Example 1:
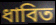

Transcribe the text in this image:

ধাবিত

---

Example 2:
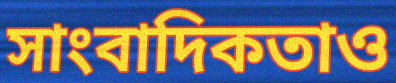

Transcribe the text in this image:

সাংবাদিকতাও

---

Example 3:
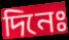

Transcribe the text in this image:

দিনেঃ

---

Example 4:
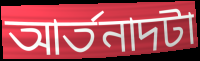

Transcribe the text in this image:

আর্তনাদটা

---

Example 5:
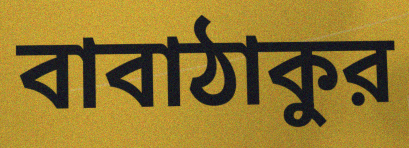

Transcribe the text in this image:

বাবাঠাকুর